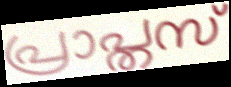
പ്രാപ്തസ്